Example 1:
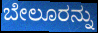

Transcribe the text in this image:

ಬೇಲೂರನ್ನು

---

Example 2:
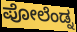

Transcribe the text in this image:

ಪೋಲೆಂಡ್ನ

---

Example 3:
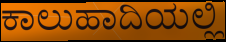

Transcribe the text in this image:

ಕಾಲುಹಾದಿಯಲ್ಲಿ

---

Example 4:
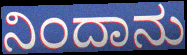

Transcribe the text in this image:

ನಿಂದಾನು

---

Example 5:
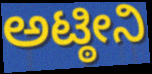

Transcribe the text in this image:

ಅಟ್ಠೀನಿ